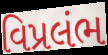
વિપ્રલંભ